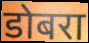
डोबरा